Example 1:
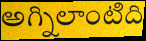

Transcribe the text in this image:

అగ్నిలాంటిది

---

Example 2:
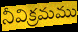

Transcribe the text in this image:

నీవిక్రమము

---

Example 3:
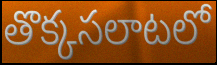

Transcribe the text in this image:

తొక్కసలాటలో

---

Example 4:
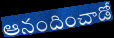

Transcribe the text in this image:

ఆనందించాడో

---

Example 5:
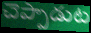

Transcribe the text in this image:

చెప్పాడుట